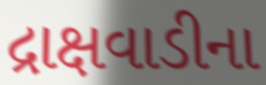
દ્રાક્ષવાડીના